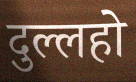
दुल्लहो